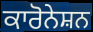
ਕਾਰੋਨੇਸ਼ਨ